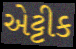
એટ્ટીક